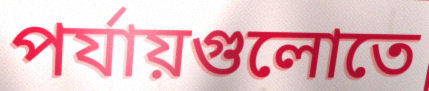
পর্যায়গুলোতে